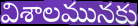
విశాలమునకు